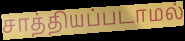
சாத்தியப்படாமல்